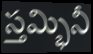
స్తమ్భినీ